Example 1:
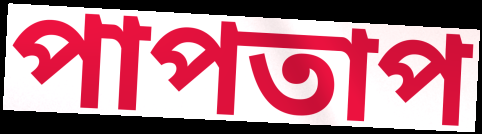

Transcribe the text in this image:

পাপতাপ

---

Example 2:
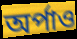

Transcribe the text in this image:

অর্পাও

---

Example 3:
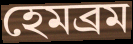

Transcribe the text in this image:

হেমব্রম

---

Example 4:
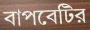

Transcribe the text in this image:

বাপবেটির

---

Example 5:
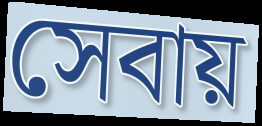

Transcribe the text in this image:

সেবায়